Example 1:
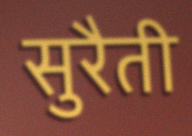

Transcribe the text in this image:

सुरैती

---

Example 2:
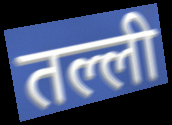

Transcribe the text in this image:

तल्ली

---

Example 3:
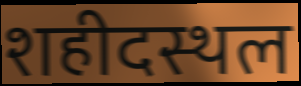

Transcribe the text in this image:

शहीदस्थल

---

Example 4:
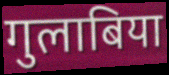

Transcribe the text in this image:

गुलाबिया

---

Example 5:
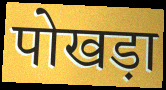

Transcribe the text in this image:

पोखड़ा